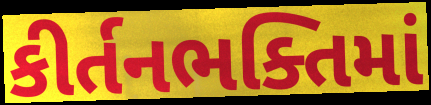
કીર્તનભક્તિમાં